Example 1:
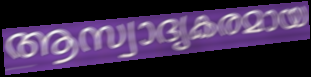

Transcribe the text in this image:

ആസ്വാദ്യകരമായ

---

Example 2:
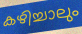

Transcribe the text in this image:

കഴിച്ചാലും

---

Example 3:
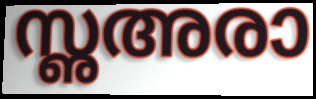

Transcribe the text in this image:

സൢഅരാ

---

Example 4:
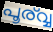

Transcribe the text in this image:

പൂര്വ്വ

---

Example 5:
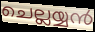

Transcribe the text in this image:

ചെല്ലയ്യൻ